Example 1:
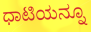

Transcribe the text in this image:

ಧಾಟಿಯನ್ನೂ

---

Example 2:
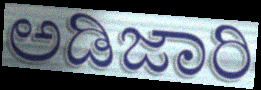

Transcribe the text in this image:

ಅಡಿಜಾರಿ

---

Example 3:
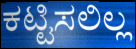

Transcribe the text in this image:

ಕಟ್ಟಿಸಲಿಲ್ಲ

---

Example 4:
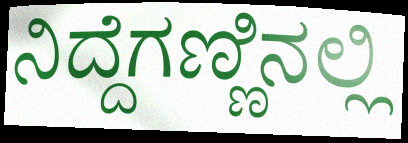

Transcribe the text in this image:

ನಿದ್ದೆಗಣ್ಣಿನಲ್ಲಿ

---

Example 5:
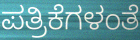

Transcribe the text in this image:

ಪತ್ರಿಕೆಗಳಂತೆ